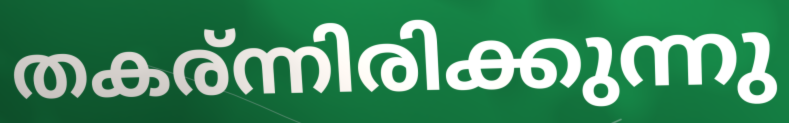
തകര്ന്നിരിക്കുന്നു